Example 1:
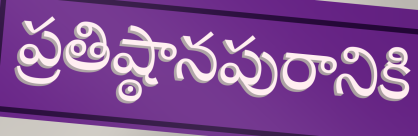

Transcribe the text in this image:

ప్రతిష్ఠానపురానికి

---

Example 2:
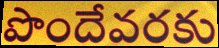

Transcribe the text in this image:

పొందేవరకు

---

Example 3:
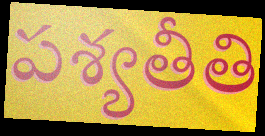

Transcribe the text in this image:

పశ్యతీతి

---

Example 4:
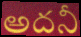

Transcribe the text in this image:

అదనీ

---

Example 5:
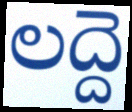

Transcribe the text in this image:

లద్దె